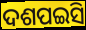
ଦଶପଇସି